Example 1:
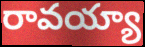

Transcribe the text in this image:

రావయ్యా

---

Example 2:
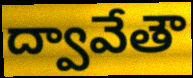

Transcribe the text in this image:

ద్వావేతౌ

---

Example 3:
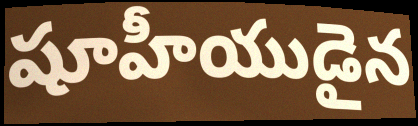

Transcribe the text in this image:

షూహీయుడైన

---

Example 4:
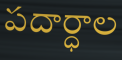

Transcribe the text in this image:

పదార్ధాల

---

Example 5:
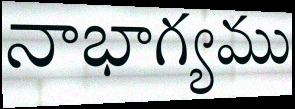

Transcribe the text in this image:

నాభాగ్యము